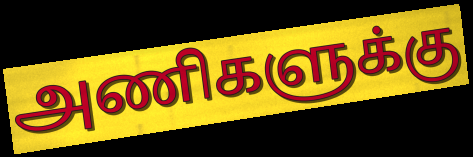
அணிகளுக்கு